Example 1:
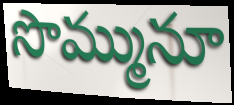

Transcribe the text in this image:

సొమ్మునూ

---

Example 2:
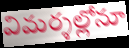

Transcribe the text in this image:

విమర్శల్లోనూ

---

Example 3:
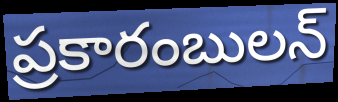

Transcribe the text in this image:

ప్రకారంబులన్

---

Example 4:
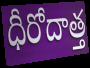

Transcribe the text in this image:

ధీరోదాత్త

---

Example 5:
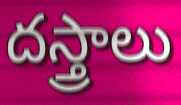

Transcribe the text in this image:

దస్త్రాలు